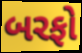
બરફો